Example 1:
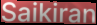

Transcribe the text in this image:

Saikiran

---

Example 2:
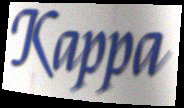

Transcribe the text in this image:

Kappa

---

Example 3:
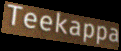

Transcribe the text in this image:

Teekappa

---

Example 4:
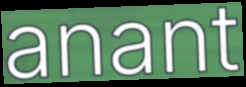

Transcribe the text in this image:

anant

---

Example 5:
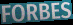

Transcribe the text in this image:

FORBES